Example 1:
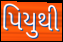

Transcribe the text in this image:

પિયુથી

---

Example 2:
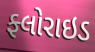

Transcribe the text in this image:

ફ્લોરાઇડ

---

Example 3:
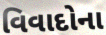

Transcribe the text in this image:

વિવાદોના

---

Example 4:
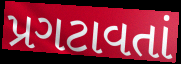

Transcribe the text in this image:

પ્રગટાવતાં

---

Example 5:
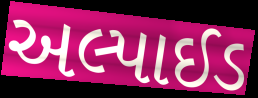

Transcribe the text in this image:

અલ્પાઈડ